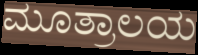
ಮೂತ್ರಾಲಯ